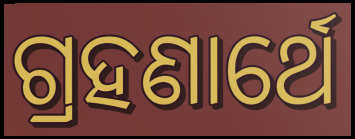
ଗ୍ରହଣାର୍ଥେ